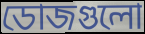
ডোজগুলো